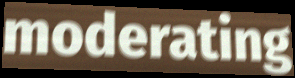
moderating